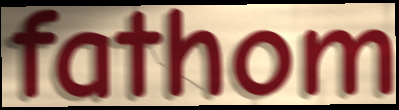
fathom